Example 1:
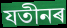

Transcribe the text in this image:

যতীনৰ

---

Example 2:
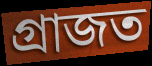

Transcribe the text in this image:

গ্ৰাজত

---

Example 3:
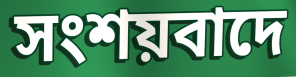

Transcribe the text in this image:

সংশয়বাদে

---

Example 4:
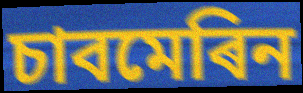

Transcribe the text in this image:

চাবমেৰিন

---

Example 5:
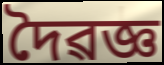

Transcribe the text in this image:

দৈৱজ্ঞ